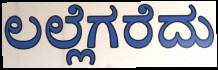
ಲಲ್ಲೆಗರೆದು